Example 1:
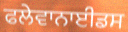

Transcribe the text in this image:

ਫਲੇਵਾਨਾਈਡਸ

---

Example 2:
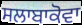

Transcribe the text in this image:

ਸਲਾਬਾਕੋਵਾ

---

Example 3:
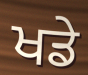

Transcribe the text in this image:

ਖਡੇ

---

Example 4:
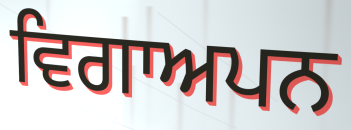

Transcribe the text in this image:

ਵਿਗਾਅਪਨ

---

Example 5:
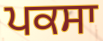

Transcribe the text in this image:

ਪਕਸਾ